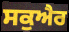
ਸਕੁਐਰ